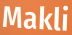
Makli